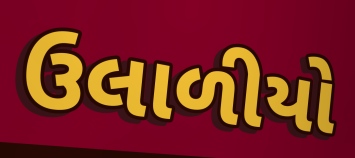
ઉલાળીયો